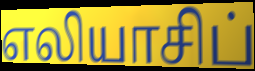
எலியாசிப்